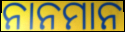
ନାନମାନ